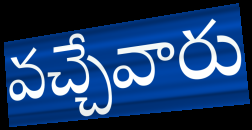
వచ్చేవారు